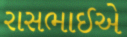
રાસભાઈએ